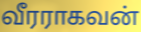
வீரராகவன்